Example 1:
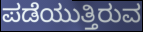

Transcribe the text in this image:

ಪಡೆಯುತ್ತಿರುವ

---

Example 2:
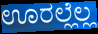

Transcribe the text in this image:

ಊರಲ್ಲೆಲ್ಲ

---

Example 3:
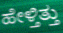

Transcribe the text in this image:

ಹೇಳ್ತಿತ್ತು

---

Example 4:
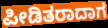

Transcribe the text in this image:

ಪೀಡಿತರಾದಾಗ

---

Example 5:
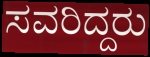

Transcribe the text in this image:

ಸವರಿದ್ದರು